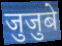
जुजुबे